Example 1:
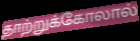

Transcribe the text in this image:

தாற்றுக்கோலால்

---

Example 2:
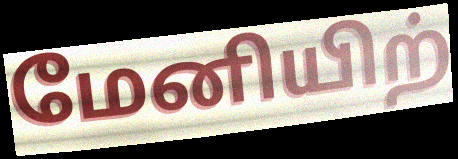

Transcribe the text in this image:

மேனியிற்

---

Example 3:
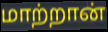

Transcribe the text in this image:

மாற்றான்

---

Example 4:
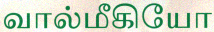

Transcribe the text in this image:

வால்மீகியோ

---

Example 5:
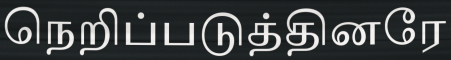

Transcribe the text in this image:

நெறிப்படுத்தினரே